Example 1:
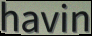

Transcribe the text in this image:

havin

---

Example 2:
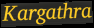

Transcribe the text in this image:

Kargathra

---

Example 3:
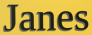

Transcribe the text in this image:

Janes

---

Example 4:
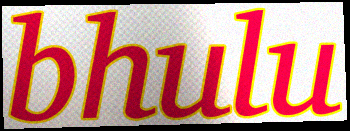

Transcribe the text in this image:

bhulu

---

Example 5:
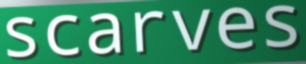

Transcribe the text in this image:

scarves